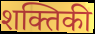
शक्तिकी